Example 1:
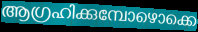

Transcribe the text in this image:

ആഗ്രഹിക്കുമ്പോഴൊക്കെ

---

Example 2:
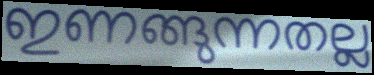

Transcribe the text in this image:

ഇണങ്ങുന്നതല്ല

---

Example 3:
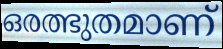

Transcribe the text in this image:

ഒരത്ഭുതമാണ്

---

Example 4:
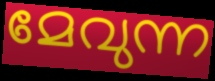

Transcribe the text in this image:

മേവുന്ന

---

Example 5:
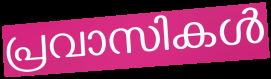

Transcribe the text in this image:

പ്രവാസികൾ